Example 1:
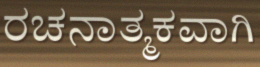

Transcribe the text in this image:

ರಚನಾತ್ಮಕವಾಗಿ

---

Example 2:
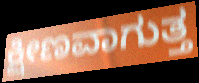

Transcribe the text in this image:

ಕ್ಷೀಣವಾಗುತ್ತ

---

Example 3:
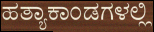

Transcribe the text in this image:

ಹತ್ಯಾಕಾಂಡಗಳಲ್ಲಿ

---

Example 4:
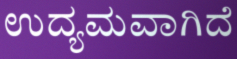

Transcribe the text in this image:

ಉದ್ಯಮವಾಗಿದೆ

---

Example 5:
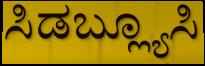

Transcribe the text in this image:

ಸಿಡಬ್ಲ್ಯೂಸಿ